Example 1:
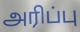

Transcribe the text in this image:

அரிப்பு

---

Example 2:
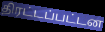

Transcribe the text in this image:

திரட்டப்பட்டன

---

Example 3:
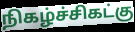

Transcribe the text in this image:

நிகழ்ச்சிகட்கு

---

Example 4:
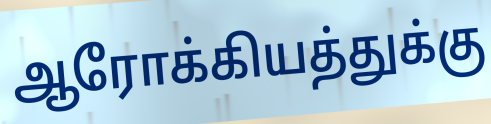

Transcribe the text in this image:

ஆரோக்கியத்துக்கு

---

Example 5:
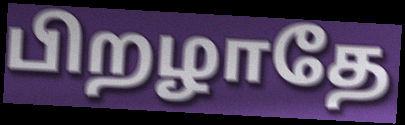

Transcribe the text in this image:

பிறழாதே